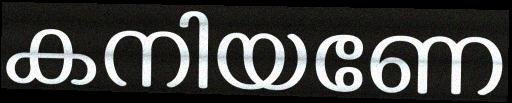
കനിയണേ